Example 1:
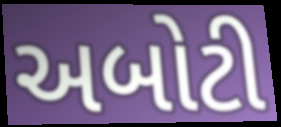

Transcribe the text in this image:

અબોટી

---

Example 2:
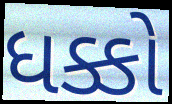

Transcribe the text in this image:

ધક્કો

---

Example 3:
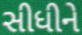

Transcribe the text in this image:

સીધીને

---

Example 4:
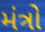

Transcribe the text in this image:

મંત્રો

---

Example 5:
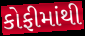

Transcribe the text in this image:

કોફીમાંથી